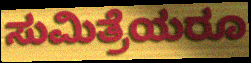
ಸುಮಿತ್ರೆಯರೂ